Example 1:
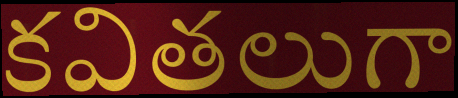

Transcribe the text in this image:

కవితలుగా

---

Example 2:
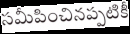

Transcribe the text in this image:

సమీపించినప్పటికీ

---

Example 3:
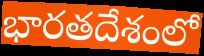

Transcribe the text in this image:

భారతదేశంలో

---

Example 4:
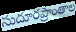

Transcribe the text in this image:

సుదూరప్రాంతాల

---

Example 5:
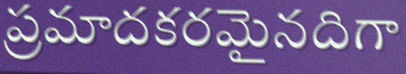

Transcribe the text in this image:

ప్రమాదకరమైనదిగా